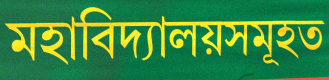
মহাবিদ্যালয়সমূহত